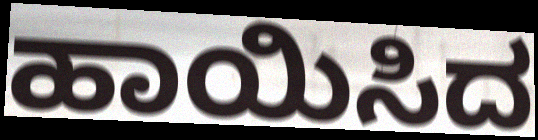
ಹಾಯಿಸಿದ